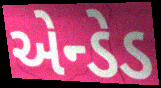
એન્ડેડ